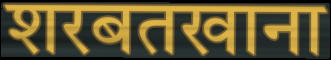
शरबतखाना